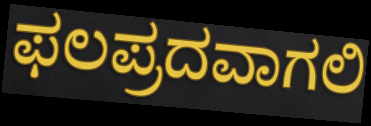
ಫಲಪ್ರದವಾಗಲಿ